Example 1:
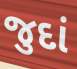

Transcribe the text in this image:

જુદાં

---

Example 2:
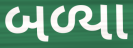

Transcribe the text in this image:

બળ્યા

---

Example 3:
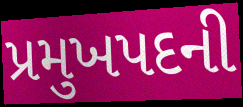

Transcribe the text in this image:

પ્રમુખપદની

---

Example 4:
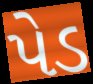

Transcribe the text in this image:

પેડ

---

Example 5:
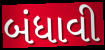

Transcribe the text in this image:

બંધાવી